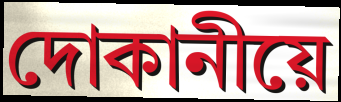
দোকানীয়ে